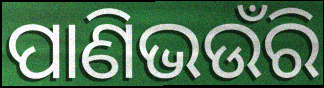
ପାଣିଭଉଁରି